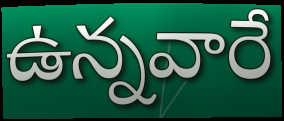
ఉన్నవారే